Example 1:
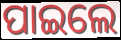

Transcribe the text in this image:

ପାଇଲେ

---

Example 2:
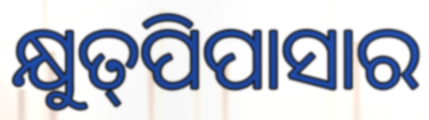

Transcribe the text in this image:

କ୍ଷୁତ୍‌ପିପାସାର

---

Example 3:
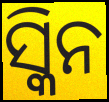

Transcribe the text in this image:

ସ୍କିନ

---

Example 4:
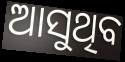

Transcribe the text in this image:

ଆସୁଥିବ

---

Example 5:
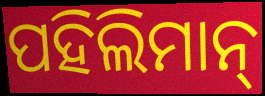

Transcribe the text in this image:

ପହିଲିମାନ୍